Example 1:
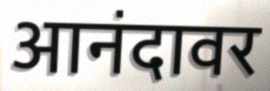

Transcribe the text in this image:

आनंदावर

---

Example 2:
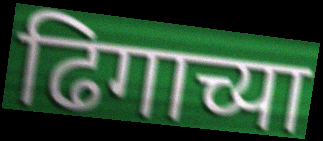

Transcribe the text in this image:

ढिगाच्या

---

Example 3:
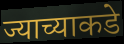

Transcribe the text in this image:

ज्याच्याकडे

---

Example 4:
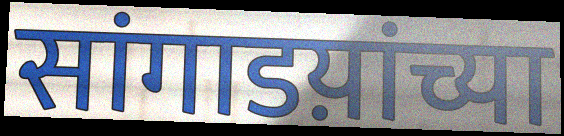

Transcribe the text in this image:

सांगाडय़ांच्या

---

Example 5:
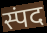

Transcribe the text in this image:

स्पंद